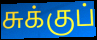
சுக்குப்